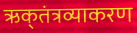
ऋक्‌तंत्रव्याकरण